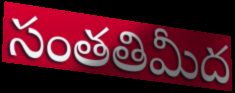
సంతతిమీద